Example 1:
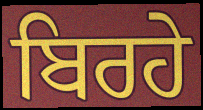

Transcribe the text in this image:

ਬਿਰਹੇ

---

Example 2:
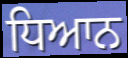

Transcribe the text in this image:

ਧਿਆਨ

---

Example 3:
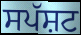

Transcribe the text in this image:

ਸਪੱਸ਼ਟ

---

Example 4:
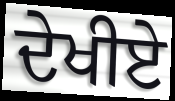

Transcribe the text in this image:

ਦੇਖੀਏ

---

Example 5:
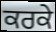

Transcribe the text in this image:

ਕਰਕੇ